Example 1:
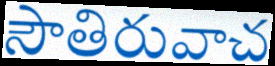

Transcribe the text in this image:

సౌతిరువాచ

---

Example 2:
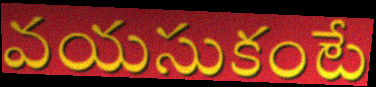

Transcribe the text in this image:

వయసుకంటే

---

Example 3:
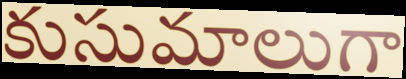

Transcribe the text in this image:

కుసుమాలుగా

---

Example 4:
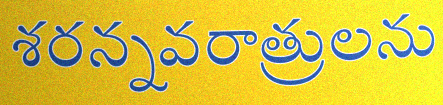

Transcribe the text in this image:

శరన్నవరాత్రులను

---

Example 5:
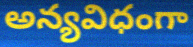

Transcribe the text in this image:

అన్యవిధంగా